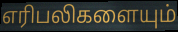
எரிபலிகளையும்